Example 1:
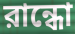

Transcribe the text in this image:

রান্ধো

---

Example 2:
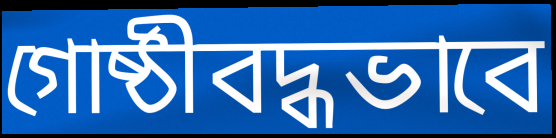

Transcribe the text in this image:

গোষ্ঠীবদ্ধভাবে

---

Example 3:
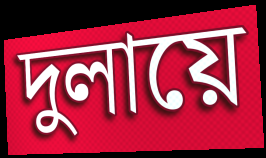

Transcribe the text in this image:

দুলায়ে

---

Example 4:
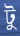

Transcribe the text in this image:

টু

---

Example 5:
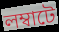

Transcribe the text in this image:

লম্বাটে